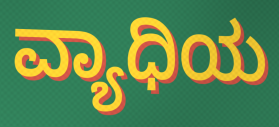
ವ್ಯಾಧಿಯ